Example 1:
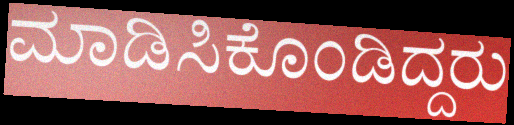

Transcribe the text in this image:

ಮಾಡಿಸಿಕೊಂಡಿದ್ದರು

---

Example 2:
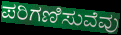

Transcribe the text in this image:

ಪರಿಗಣಿಸುವೆವು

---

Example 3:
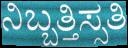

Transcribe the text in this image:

ನಿಬ್ಬತ್ತಿಸ್ಸತಿ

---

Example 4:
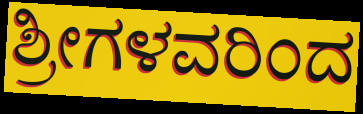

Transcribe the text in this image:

ಶ್ರೀಗಳವರಿಂದ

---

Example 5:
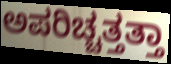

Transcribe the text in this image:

ಅಪರಿಚ್ಚತ್ತತ್ತಾ